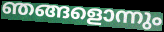
ഞങ്ങളൊന്നും